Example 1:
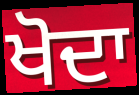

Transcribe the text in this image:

ਖੋਦਾ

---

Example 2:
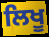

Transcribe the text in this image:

ਲਿਖੂ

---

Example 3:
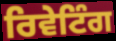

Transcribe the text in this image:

ਰਿਵੇਟਿੰਗ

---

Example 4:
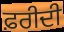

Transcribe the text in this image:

ਫ਼ਰੀਦੀ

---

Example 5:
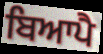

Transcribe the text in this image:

ਬਿਆਪੈ